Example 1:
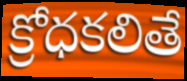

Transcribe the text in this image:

క్రోధకలితే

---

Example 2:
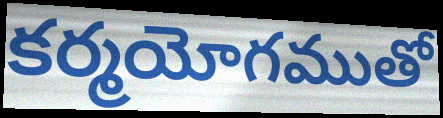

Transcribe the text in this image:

కర్మయోగముతో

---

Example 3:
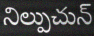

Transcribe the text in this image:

నిల్పుచున్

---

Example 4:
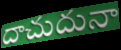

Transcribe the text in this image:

దాచుదునా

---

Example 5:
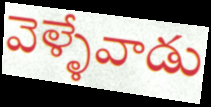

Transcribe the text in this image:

వెళ్ళేవాడు